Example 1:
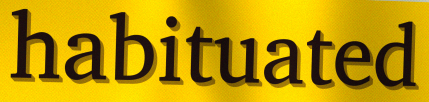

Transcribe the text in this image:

habituated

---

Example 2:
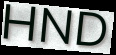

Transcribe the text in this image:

HND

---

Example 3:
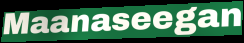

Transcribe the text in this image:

Maanaseegan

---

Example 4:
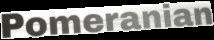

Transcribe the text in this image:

Pomeranian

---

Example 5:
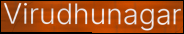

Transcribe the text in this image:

Virudhunagar